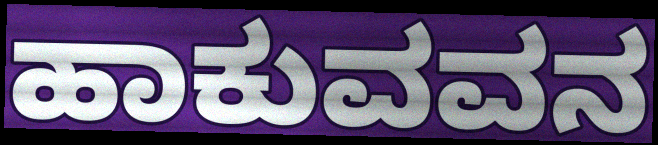
ಹಾಕುವವನ